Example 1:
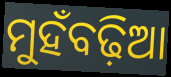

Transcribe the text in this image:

ମୁହଁବଢ଼ିଆ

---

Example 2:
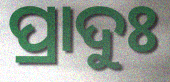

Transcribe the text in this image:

ପ୍ରାଦୁଃ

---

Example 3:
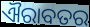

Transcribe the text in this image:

ଐରାବତର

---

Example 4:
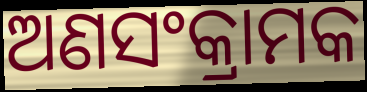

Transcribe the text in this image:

ଅଣସଂକ୍ରାମକ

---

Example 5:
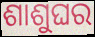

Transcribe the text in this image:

ଶାଶୁଘର